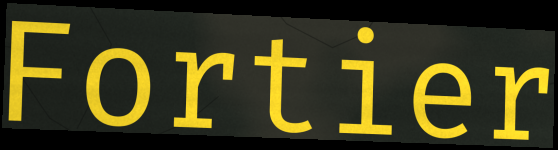
Fortier